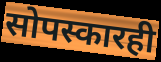
सोपस्कारही